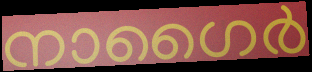
നാഗൈർ